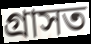
গ্ৰাসত